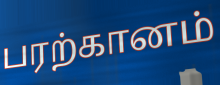
பரற்கானம்